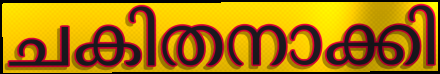
ചകിതനാക്കി